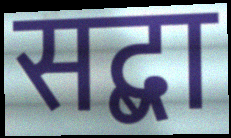
सद्बा